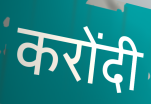
करोंदी